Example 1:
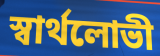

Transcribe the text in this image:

স্বার্থলোভী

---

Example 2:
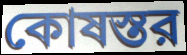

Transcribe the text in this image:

কোষস্তর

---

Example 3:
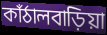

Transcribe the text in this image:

কাঁঠালবাড়িয়া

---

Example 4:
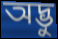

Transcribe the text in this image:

অদ্ভু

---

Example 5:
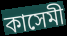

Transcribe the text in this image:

কাসেমী